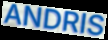
ANDRIS